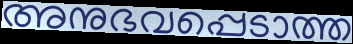
അനുഭവപ്പെടാത്ത